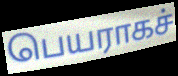
பெயராகச்